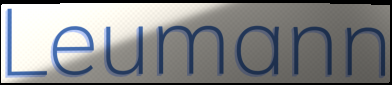
Leumann